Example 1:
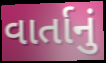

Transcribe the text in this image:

વાર્તાનું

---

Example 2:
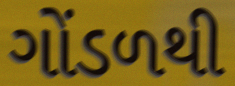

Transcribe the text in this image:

ગોંડળથી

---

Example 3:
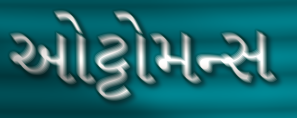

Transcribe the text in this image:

ઓટ્ટોમન્સ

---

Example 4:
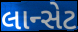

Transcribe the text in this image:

લાન્સેટ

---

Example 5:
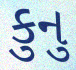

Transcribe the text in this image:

કુનુ